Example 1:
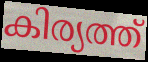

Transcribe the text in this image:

കിര്യത്ത്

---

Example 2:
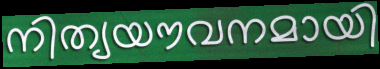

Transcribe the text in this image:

നിത്യയൗവനമായി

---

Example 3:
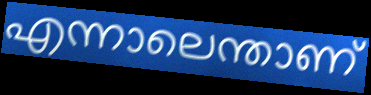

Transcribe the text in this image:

എന്നാലെന്താണ്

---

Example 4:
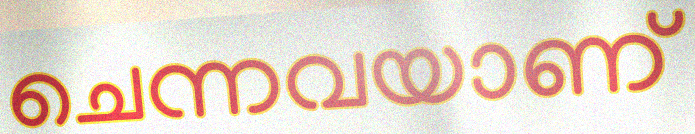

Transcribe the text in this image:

ചെന്നവയാണ്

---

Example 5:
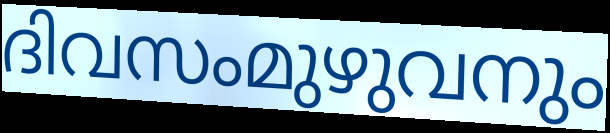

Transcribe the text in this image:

ദിവസംമുഴുവനും